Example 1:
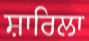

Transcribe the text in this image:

ਸ਼ਾਰਿਲਾ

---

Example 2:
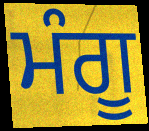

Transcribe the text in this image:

ਮੰਗੂ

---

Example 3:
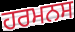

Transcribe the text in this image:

ਹਰਮਨਸ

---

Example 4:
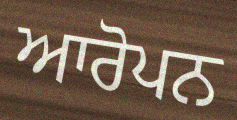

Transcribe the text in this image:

ਆਰੋਪਨ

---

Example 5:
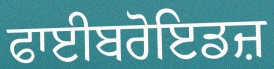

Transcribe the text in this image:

ਫਾਈਬਰੋਇਡਜ਼